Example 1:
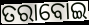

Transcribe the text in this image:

ତରାବୋଇ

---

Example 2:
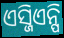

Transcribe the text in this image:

ଏସ୍ଜିଏନ୍ପି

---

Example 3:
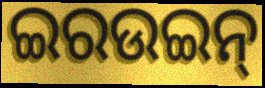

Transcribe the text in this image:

ଇରଉଇନ୍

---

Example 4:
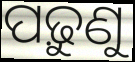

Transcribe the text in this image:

ପଢ଼ୁଣୁ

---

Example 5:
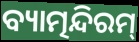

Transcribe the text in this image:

ବ୍ୟାତ୍ମନ୍ଦିରମ୍